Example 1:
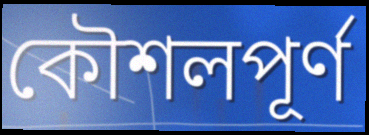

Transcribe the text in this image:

কৌশলপূর্ণ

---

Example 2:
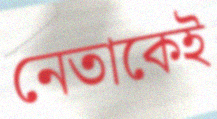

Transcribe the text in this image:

নেতাকেই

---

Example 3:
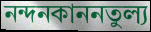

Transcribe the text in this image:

নন্দনকাননতুল্য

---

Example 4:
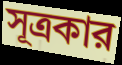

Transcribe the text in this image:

সূত্রকার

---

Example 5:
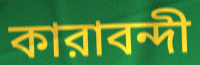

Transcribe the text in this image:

কারাবন্দী